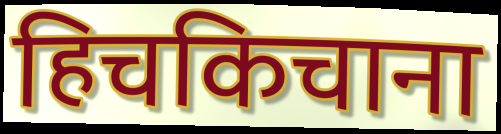
हिचकिचाना